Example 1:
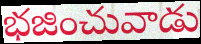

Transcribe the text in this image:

భజించువాడు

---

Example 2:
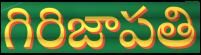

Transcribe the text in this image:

గిరిజాపతి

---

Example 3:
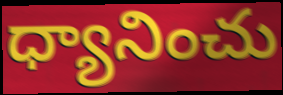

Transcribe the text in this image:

ధ్యానించు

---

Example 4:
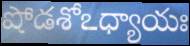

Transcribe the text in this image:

షోడశోఽధ్యాయః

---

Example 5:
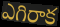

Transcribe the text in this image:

ఎగిరాక